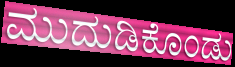
ಮುದುಡಿಕೊಂಡು